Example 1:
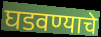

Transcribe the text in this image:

घडवण्याचे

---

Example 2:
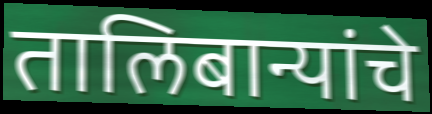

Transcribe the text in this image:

तालिबान्यांचे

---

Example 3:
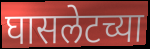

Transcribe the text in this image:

घासलेटच्या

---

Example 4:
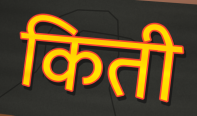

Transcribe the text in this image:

किती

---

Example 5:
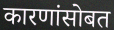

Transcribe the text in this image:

कारणांसोबत